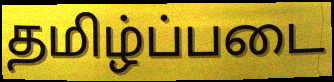
தமிழ்ப்படை